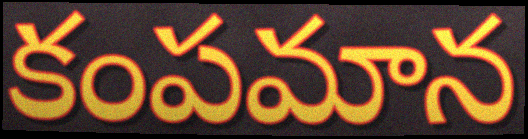
కంపమాన